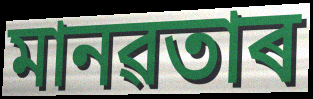
মানৱতাৰ